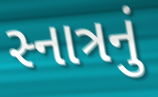
સ્નાત્રનું